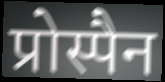
प्रोस्पैन